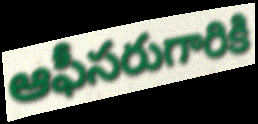
ఆఫీసరుగారికి